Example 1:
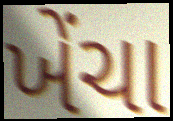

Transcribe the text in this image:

ખેંચા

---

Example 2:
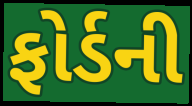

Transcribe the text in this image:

ફોર્ડની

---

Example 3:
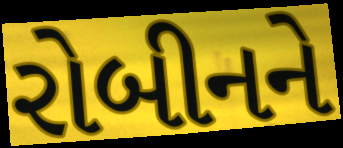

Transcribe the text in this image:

રોબીનને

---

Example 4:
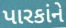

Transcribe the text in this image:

પારકાંને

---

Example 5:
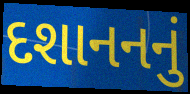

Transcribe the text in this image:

દશાનનનું